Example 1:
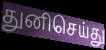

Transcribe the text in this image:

துனிசெய்து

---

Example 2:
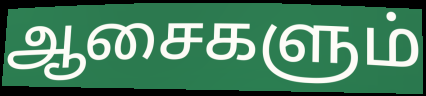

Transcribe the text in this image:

ஆசைகளும்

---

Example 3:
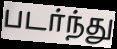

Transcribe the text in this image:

படர்ந்து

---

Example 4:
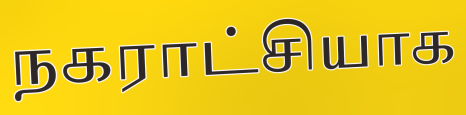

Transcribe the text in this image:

நகராட்சியாக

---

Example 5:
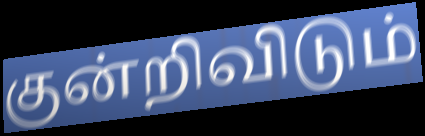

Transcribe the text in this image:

குன்றிவிடும்